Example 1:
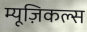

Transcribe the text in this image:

म्यूज़िकल्स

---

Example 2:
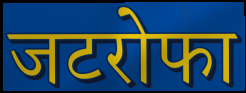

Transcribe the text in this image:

जटरोफा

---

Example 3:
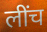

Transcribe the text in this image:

लींच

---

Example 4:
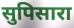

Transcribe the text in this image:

सुपिसारा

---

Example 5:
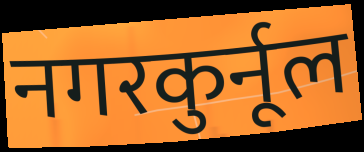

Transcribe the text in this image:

नगरकुर्नूल